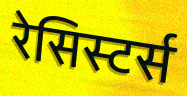
रेसिस्टर्स